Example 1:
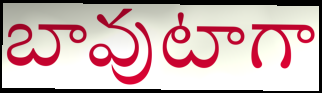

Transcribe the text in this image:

బావుటాగా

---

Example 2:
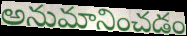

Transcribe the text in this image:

అనుమానించడం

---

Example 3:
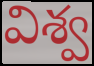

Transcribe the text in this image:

విశ్వ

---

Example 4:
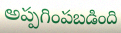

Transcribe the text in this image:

అప్పగింపబడింది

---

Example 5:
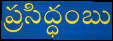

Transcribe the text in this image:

ప్రసిద్ధంబు